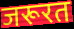
जरूरत